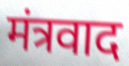
मंत्रवाद